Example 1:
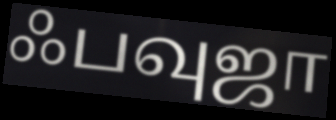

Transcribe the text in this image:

ஃபவுஜா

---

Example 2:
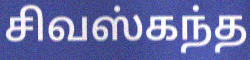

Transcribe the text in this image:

சிவஸ்கந்த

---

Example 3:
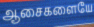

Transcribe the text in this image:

ஆசைகளையே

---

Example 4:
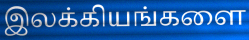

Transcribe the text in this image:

இலக்கியங்களை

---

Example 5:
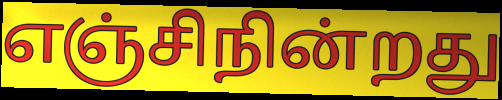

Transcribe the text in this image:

எஞ்சிநின்றது